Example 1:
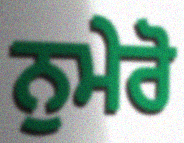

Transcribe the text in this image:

ਨੁਮੇਰੋ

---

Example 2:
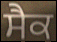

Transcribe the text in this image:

ਸੈਕ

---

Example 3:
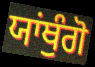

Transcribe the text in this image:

ਯਾਂਥੁੰਗੋ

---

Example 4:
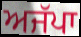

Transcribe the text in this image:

ਅਜੱਪਾ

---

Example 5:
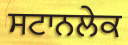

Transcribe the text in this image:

ਸਟਾਨਲੇਕ